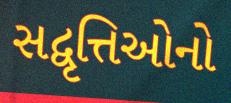
સદ્વૃત્તિઓનો